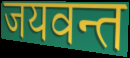
जयवन्त